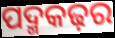
ପଦ୍ମକଢ଼ର